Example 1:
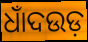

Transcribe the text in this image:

ଧାଁଦଉଡ଼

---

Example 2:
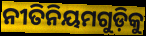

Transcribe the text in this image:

ନୀତିନିୟମଗୁଡ଼ିକୁ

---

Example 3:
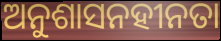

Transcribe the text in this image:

ଅନୁଶାସନହୀନତା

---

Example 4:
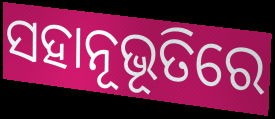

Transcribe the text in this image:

ସହାନୂଭୂତିରେ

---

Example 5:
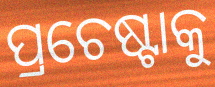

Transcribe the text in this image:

ପ୍ରଚେଷ୍ଟାକୁ